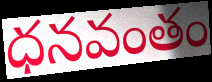
ధనవంతం